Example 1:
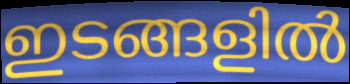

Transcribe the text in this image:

ഇടങ്ങളിൽ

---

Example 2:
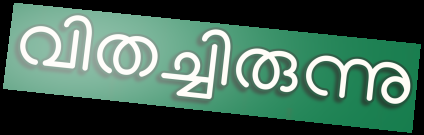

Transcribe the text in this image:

വിതച്ചിരുന്നു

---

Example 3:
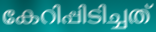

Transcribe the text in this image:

കേറിപ്പിടിച്ചത്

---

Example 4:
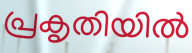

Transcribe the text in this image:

പ്രകൃതിയിൽ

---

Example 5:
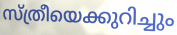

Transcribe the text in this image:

സ്ത്രീയെക്കുറിച്ചും